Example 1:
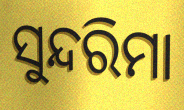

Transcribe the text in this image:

ସୁନ୍ଦରିମା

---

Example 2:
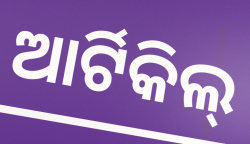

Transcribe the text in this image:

ଆର୍ଟିକିଲ୍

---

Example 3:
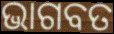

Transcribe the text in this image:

ଭାଗବତ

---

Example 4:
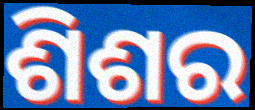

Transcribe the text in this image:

ଶିଶର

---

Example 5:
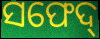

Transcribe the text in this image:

ସଫେଦ୍